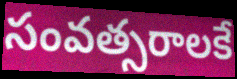
సంవత్సరాలకే